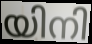
യിനി